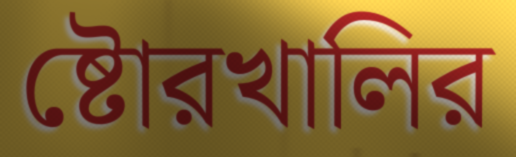
ষ্টোরখালির